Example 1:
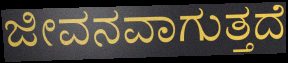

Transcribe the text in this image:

ಜೀವನವಾಗುತ್ತದೆ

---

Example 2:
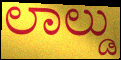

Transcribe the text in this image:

ಲಾಲ್ಡು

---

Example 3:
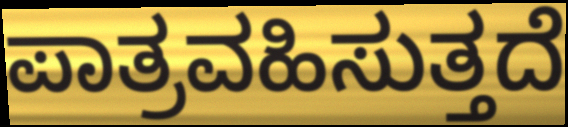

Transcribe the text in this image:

ಪಾತ್ರವಹಿಸುತ್ತದೆ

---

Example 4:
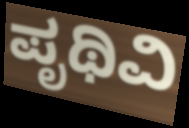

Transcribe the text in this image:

ಪೃಥಿವಿ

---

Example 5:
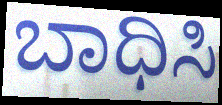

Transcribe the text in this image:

ಬಾಧಿಸಿ